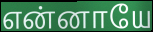
என்னாயே